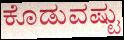
ಕೊಡುವಷ್ಟು